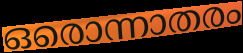
ഒരൊന്നാതരം